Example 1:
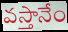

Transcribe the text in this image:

వస్తానేం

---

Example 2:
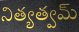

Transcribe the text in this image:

నిత్యత్వమ్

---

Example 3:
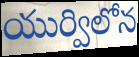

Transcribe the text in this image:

యుర్విలోన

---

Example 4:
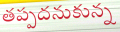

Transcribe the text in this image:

తప్పదనుకున్న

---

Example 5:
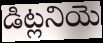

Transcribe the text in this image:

డిట్లనియె